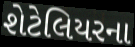
શેટેલિયરના